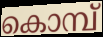
കൊമ്പ്